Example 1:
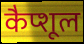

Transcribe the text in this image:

कैप्शूल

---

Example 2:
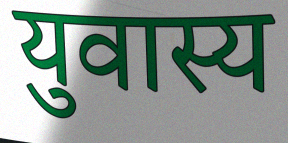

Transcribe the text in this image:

युवास्य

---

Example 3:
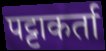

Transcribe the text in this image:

पट्टाकर्ता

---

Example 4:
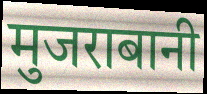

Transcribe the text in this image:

मुजराबानी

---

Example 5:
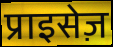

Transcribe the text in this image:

प्राइसेज़